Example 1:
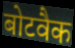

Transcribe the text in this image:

बोटवैक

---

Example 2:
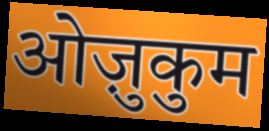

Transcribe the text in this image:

ओज़ुकुम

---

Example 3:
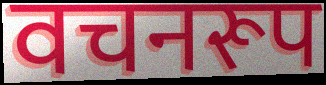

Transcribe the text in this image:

वचनरूप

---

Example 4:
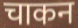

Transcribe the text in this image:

चाकन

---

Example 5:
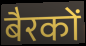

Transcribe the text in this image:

बैरकों